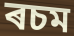
ৰচম